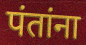
पंतांना